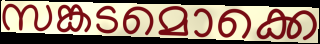
സങ്കടമൊക്കെ